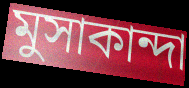
মুসাকান্দা